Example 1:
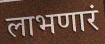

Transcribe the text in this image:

लाभणारं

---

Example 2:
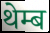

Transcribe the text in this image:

थेम्ब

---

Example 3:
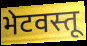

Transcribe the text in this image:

भेटवस्तू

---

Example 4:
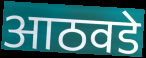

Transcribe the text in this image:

आठवडे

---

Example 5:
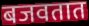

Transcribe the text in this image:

बजवतात